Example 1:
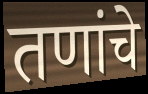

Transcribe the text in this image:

तणांचे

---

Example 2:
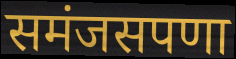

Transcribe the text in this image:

समंजसपणा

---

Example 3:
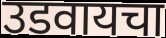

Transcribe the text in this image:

उडवायचा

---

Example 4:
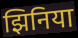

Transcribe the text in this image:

झिनिया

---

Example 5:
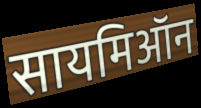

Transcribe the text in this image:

सायमिऑन